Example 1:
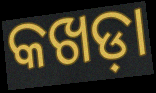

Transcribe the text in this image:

କଖଡ଼ା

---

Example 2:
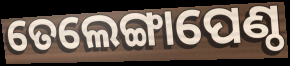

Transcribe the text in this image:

ତେଲେଙ୍ଗାପେଣ୍ଠ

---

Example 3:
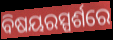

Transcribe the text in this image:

ବିଷୟରସ୍ପର୍ଶରେ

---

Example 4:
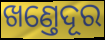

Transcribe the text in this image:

ଖଣ୍ତେଦୂର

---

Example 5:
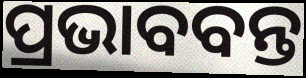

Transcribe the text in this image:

ପ୍ରଭାବବନ୍ତ